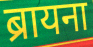
ब्रायना